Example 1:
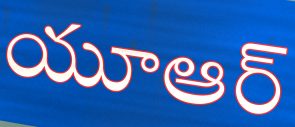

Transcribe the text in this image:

యూఆర్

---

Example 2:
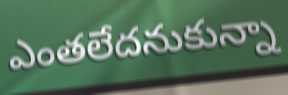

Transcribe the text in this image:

ఎంతలేదనుకున్నా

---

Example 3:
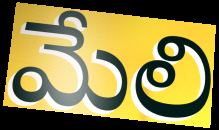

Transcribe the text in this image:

మేలి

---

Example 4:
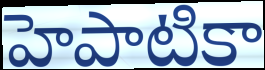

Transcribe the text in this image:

హెపాటికా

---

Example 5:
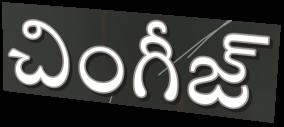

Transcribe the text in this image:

చింగీజ్